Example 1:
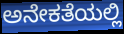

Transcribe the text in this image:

ಅನೇಕತೆಯಲ್ಲಿ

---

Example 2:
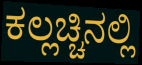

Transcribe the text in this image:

ಕಲ್ಲಚ್ಚಿನಲ್ಲಿ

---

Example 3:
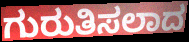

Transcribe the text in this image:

ಗುರುತಿಸಲಾದ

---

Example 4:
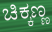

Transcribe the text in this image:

ಚಿಕ್ಕಣ್ಣ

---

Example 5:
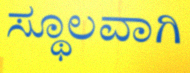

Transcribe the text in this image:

ಸ್ಥೂಲವಾಗಿ